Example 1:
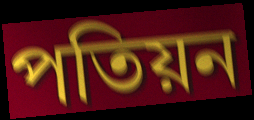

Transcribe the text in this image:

পতিয়ন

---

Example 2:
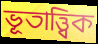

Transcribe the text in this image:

ভূতাত্ত্বিক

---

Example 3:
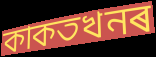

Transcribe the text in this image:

কাকতখনৰ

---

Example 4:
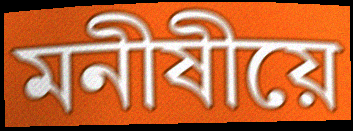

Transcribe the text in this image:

মনীষীয়ে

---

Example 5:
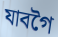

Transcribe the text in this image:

যাবগৈ